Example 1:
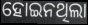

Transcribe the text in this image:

ହୋଇନଥିଲା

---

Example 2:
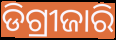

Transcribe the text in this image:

ଡିଗ୍ରୀଜାରି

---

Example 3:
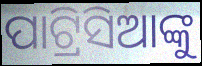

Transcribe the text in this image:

ପାଟ୍ରିସିଆଙ୍କୁ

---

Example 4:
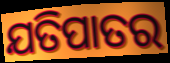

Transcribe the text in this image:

ଯତିପାତର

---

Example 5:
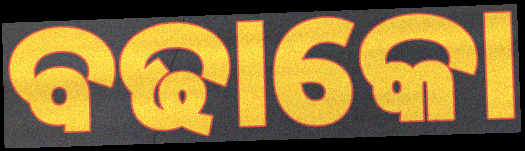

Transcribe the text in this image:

ବଢାକୋ